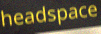
headspace